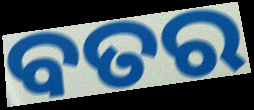
ବତର